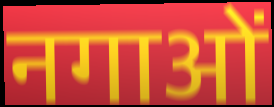
नगाओं